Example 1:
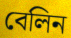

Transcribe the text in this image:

বেলিন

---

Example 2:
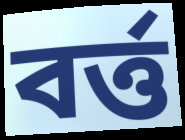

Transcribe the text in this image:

বর্ত্ত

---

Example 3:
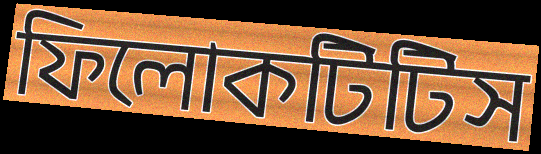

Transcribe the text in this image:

ফিলোকটিটিস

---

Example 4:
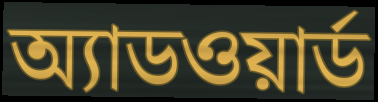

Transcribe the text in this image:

অ্যাডওয়ার্ড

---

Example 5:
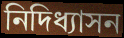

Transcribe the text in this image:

নিদিধ্যাসন